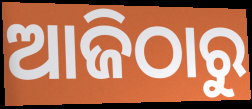
ଆଜିଠାରୁ